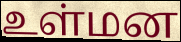
உள்மன